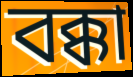
বক্কা